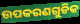
ଉପକରଣଗୁଡିକ